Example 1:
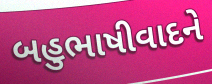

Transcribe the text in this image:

બહુભાષીવાદને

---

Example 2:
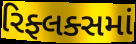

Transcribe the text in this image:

રિફ્લક્સમાં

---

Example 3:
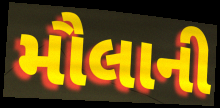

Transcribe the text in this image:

મૌલાની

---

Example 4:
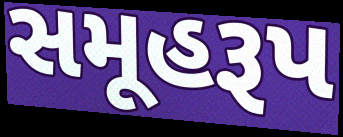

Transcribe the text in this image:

સમૂહરૂપ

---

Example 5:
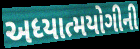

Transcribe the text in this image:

અધ્યાત્મયોગીની